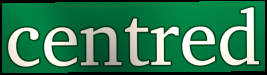
centred